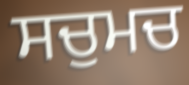
ਸਚੁਮਚ